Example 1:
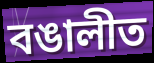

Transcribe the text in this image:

বঙালীত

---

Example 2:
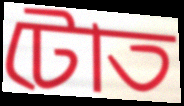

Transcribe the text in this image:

টোত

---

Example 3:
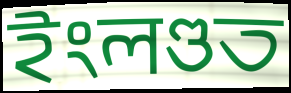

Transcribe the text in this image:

ইংলণ্ডত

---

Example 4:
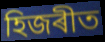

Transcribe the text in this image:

হিজৰীত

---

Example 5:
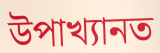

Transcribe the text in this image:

উপাখ্যানত